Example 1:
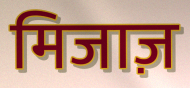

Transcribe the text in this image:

मिजाज़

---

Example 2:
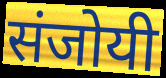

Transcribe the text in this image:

संजोयी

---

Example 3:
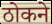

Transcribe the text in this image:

ठोकने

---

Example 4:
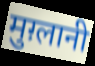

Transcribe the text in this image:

मुग़्लानी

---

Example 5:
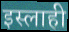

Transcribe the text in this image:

इस्लाही